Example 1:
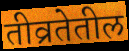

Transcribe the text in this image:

तीव्रतेतील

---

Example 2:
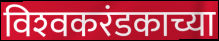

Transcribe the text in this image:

विश्‍वकरंडकाच्या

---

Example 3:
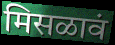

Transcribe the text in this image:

मिसळावं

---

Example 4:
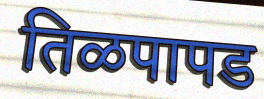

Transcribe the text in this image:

तिळपापड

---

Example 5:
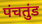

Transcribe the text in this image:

पंचतुंड